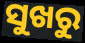
ସୁଖରୁ